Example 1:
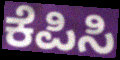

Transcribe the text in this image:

ಕೆಪಿಸಿ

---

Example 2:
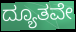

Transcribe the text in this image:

ದ್ಯೂತವೇ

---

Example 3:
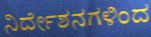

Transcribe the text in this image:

ನಿರ್ದೇಶನಗಳಿಂದ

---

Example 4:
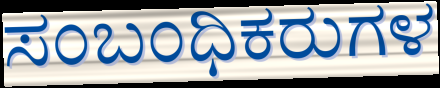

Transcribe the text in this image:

ಸಂಬಂಧಿಕರುಗಳ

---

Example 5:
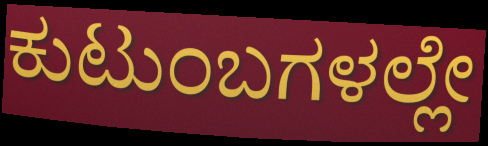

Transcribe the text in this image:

ಕುಟುಂಬಗಳಲ್ಲೇ